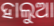
ହାଲୁଆ